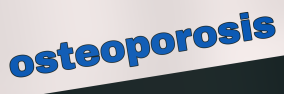
osteoporosis